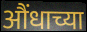
औंधाच्या